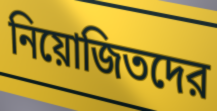
নিয়োজিতদের